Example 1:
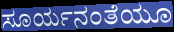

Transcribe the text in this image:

ಸೂರ್ಯನಂತೆಯೂ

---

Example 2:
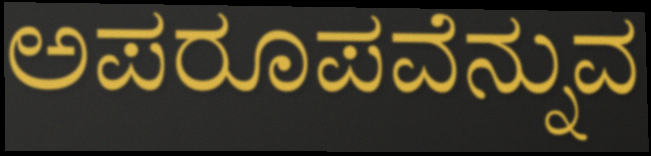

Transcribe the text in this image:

ಅಪರೂಪವೆನ್ನುವ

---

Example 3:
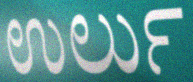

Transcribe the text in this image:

ಉರ್ಲು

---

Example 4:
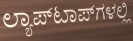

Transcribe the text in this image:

ಲ್ಯಾಪ್‌ಟಾಪ್‌ಗಳಲ್ಲಿ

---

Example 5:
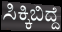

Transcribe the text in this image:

ಸಿಕ್ಕಿಬಿದ್ದೆ